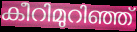
കീറിമുറിഞ്ഞ്